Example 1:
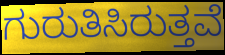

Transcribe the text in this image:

ಗುರುತಿಸಿರುತ್ತವೆ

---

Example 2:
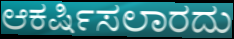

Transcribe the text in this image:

ಆಕರ್ಷಿಸಲಾರದು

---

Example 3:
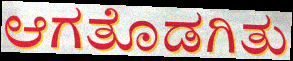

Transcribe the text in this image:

ಆಗತೊಡಗಿತು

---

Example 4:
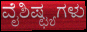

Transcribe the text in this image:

ವೈಶಿಷ್ಟ್ಯಗಳು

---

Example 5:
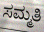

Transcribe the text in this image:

ಸಮ್ಮತಿ